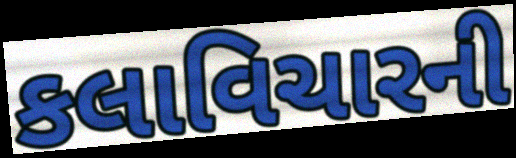
કલાવિચારની